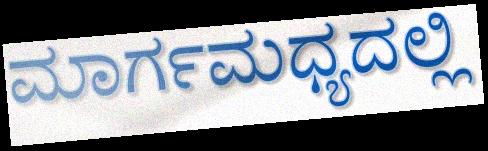
ಮಾರ್ಗಮಧ್ಯದಲ್ಲಿ